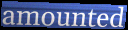
amounted